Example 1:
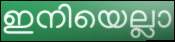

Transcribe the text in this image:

ഇനിയെല്ലാ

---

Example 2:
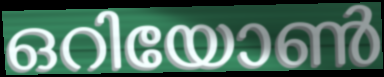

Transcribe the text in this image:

ഒറിയോൺ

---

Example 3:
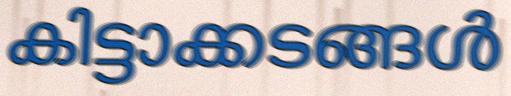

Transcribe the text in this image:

കിട്ടാക്കടങ്ങൾ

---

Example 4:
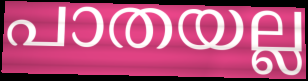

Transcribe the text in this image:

പാതയല്ല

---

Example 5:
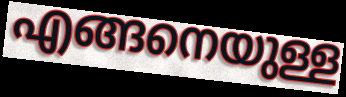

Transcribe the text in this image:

എങ്ങനെയുള്ള